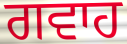
ਗਵਾਹ